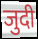
जुदी